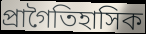
প্রাগৈতিহাসিক